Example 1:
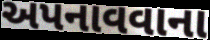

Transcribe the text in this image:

અપનાવવાના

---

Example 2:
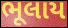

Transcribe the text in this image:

ભૂલાય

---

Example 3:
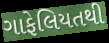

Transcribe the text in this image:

ગાફેલિયતથી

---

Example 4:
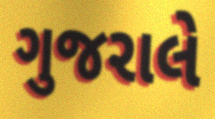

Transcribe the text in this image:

ગુજરાલે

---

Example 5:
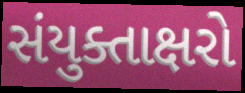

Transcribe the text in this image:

સંયુક્તાક્ષરો